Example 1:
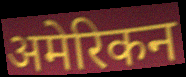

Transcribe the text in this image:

अमेरिकन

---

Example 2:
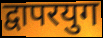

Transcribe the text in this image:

द्वापरयुग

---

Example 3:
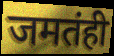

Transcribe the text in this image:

जमतंही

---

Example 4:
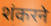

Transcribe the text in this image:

शंकरने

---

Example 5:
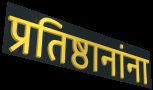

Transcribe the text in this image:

प्रतिष्ठानांना